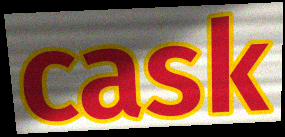
cask